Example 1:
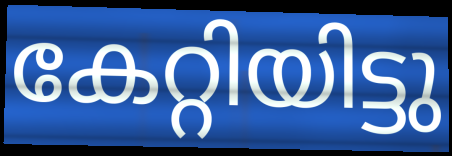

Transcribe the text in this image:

കേറ്റിയിട്ടു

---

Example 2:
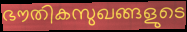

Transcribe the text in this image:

ഭൗതികസുഖങ്ങളുടെ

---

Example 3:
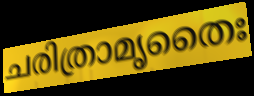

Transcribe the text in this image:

ചരിത്രാമൃതൈഃ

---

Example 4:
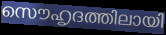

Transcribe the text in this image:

സൌഹൃദത്തിലായി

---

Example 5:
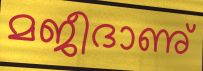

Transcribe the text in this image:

മജീദാണു്